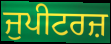
ਜੁਪੀਟਰਜ਼